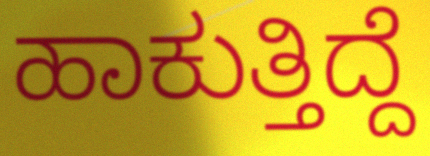
ಹಾಕುತ್ತಿದ್ದೆ